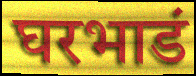
घरभाडं